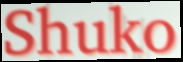
Shuko